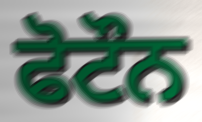
ਫੋਟੌਨ